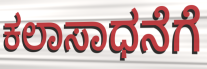
ಕಲಾಸಾಧನೆಗೆ